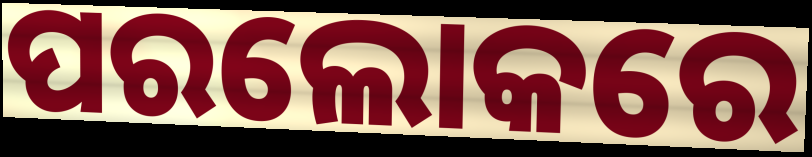
ପରଲୋକରେ